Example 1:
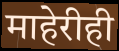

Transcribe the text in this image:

माहेरीही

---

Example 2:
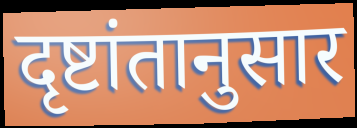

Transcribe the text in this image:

दृष्टांतानुसार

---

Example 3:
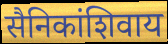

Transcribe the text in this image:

सैनिकांशिवाय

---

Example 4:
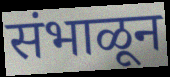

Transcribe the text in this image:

संभाळून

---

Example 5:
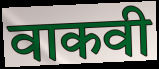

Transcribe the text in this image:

वाकवी